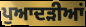
ਪੁਆਦੜੀਆਂ